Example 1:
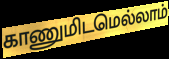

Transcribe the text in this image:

காணுமிடமெல்லாம்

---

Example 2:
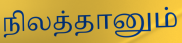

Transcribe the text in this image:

நிலத்தானும்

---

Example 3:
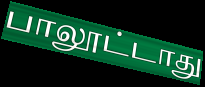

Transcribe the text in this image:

பாலூட்டாது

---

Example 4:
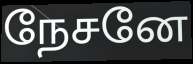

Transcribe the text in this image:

நேசனே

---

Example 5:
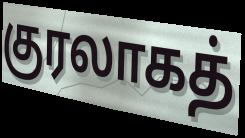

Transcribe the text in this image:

குரலாகத்